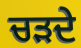
ਚੜਦੇ